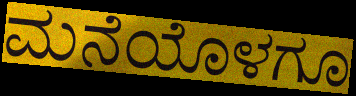
ಮನೆಯೊಳಗೂ